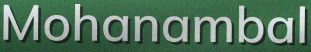
Mohanambal